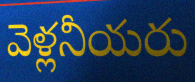
వెళ్లనీయరు